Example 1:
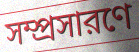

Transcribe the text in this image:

সম্প্রসারণে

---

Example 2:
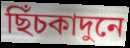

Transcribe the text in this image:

ছিঁচকাদুনে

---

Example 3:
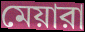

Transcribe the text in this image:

মেয়ারা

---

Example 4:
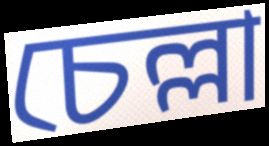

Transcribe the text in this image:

চেল্লা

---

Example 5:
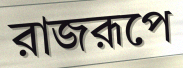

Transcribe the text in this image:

রাজরূপে